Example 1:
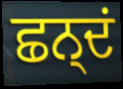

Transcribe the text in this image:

ਛਨ੍ਦਂ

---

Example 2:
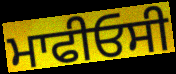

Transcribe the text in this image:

ਮਾਫੀਓਸੀ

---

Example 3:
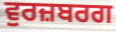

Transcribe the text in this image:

ਵੁਰਜ਼ਬਰਗ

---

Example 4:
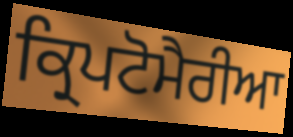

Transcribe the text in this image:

ਕ੍ਰਿਪਟੋਮੈਰੀਆ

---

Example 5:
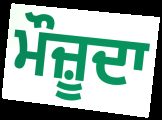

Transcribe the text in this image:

ਮੌਜ਼ੂਦਾ